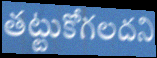
తట్టుకోగలదని